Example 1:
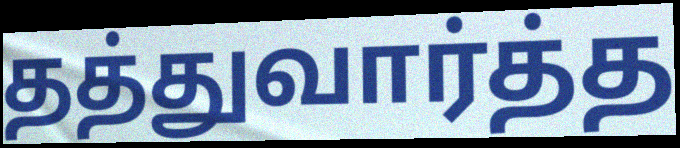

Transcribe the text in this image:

தத்துவார்த்த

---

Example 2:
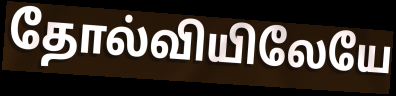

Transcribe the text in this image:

தோல்வியிலேயே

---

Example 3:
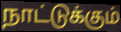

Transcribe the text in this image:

நாட்டுக்கும்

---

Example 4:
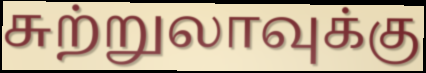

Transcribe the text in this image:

சுற்றுலாவுக்கு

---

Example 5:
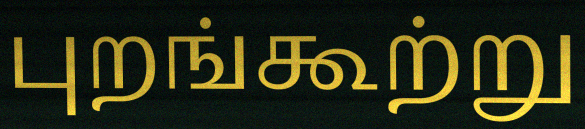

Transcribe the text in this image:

புறங்கூற்று